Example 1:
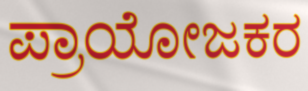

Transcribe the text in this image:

ಪ್ರಾಯೋಜಕರ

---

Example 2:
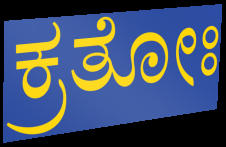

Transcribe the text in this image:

ಕ್ರತೋಃ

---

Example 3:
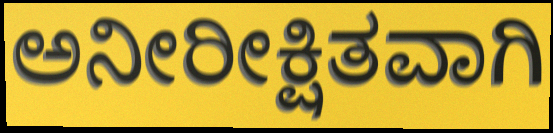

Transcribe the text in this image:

ಅನೀರೀಕ್ಷಿತವಾಗಿ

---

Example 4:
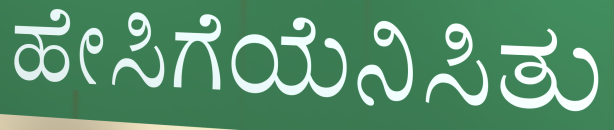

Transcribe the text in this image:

ಹೇಸಿಗೆಯೆನಿಸಿತು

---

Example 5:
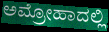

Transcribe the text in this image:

ಅಮ್ರೋಹಾದಲ್ಲಿ